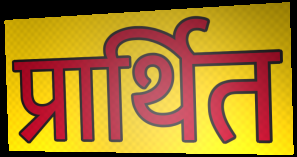
प्रार्थित